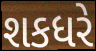
શકધરે